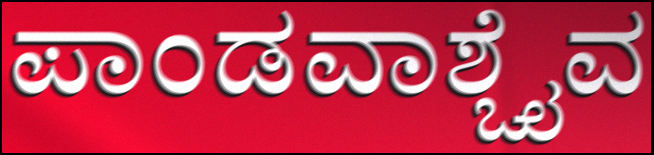
ಪಾಂಡವಾಶ್ಚೈವ